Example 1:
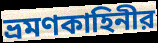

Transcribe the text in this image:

ভ্রমণকাহিনীর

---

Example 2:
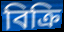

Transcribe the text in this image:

বিক্রি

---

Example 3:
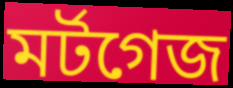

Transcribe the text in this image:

মর্টগেজ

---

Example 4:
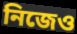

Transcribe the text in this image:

নিজেও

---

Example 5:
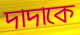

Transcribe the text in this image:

দাদাকে